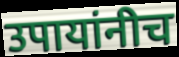
उपायांनीच